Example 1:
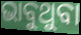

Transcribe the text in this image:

ଭାବୁଥୁବା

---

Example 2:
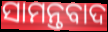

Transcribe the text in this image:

ସାମନ୍ତବାଦ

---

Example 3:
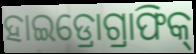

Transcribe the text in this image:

ହାଇଡ୍ରୋଗ୍ରାଫିକ୍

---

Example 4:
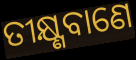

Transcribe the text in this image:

ତୀକ୍ଷ୍ଣବାଣେ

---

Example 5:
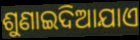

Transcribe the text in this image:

ଶୁଣାଇଦିଆଯାଏ